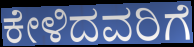
ಕೇಳಿದವರಿಗೆ